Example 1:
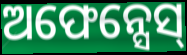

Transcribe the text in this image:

ଅଫେନ୍ସେସ୍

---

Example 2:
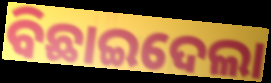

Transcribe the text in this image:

ବିଛାଇଦେଲା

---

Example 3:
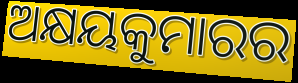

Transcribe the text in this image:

ଅକ୍ଷୟକୁମାରର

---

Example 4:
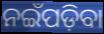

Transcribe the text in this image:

ନଇଁପଡ଼ିବା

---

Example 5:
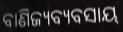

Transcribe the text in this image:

ବାଣିଜ୍ୟବ୍ୟବସାୟ